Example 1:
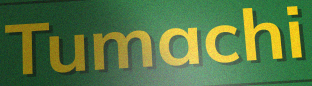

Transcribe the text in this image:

Tumachi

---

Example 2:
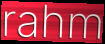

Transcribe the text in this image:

rahm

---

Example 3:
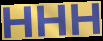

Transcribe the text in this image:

HHH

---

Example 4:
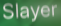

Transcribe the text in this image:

Slayer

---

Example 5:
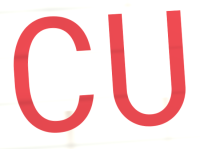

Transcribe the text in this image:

CU